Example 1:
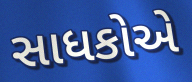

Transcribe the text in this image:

સાધકોએ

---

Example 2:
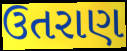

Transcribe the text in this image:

ઉતરાણ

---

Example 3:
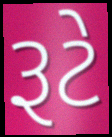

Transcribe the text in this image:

રૂટે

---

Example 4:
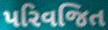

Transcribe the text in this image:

પરિવજિત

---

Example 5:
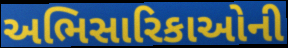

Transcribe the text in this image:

અભિસારિકાઓની